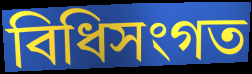
বিধিসংগত